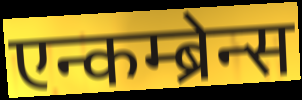
एन्कम्ब्रेन्स